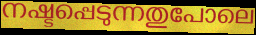
നഷ്ടപ്പെടുന്നതുപോലെ